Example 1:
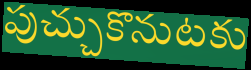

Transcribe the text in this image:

పుచ్చుకొనుటకు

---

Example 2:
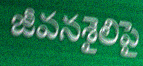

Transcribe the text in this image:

జీవనశైలిపై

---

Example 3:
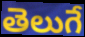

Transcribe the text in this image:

తెలుగే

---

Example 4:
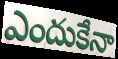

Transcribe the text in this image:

ఎందుకేనా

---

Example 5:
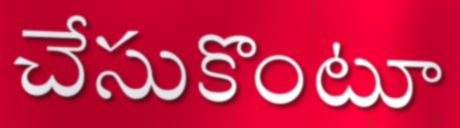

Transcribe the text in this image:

చేసుకొంటూ